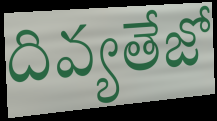
దివ్యతేజో